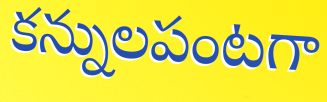
కన్నులపంటగా